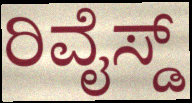
ರಿವೈಸ್ಡ್